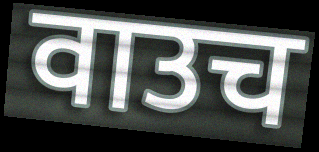
वाउच